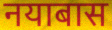
नयाबास